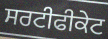
ਸਰਟੀਫੀਕੇਟ